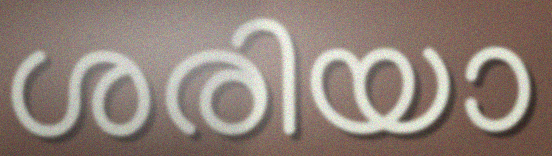
ശരിയാ